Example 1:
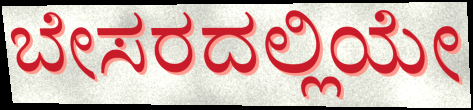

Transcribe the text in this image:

ಬೇಸರದಲ್ಲಿಯೇ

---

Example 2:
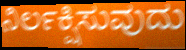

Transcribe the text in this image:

ನಿರ್ಲಕ್ಷಿಸುವುದು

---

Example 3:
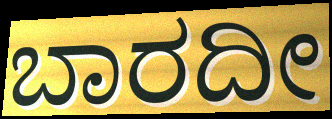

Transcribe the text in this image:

ಬಾರದೀ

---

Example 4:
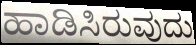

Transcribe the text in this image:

ಹಾಡಿಸಿರುವುದು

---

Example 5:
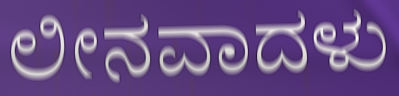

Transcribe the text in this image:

ಲೀನವಾದಳು